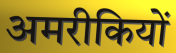
अमरीकियों